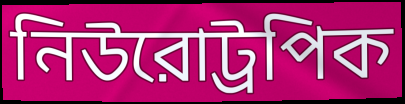
নিউরোট্রপিক